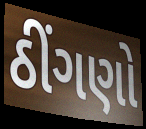
ઠીંગણો